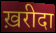
ख़रीदा